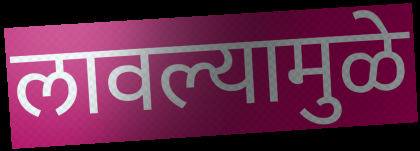
लावल्यामुळे